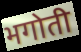
भगोती